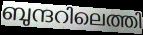
ബുന്ദറിലെത്തി